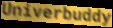
Univerbuddy